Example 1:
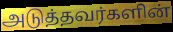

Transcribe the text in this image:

அடுத்தவர்களின்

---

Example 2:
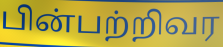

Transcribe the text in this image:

பின்பற்றிவர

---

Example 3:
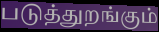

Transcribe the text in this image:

படுத்துறங்கும்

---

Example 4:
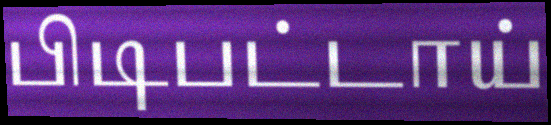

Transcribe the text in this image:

பிடிபட்டாய்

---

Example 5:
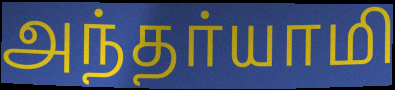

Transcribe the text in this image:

அந்தர்யாமி